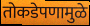
तोकडेपणामुळे